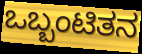
ಒಬ್ಬಂಟಿತನ